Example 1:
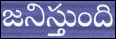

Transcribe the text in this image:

జనిస్తుంది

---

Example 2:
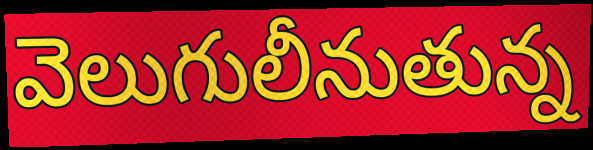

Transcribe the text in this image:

వెలుగులీనుతున్న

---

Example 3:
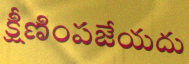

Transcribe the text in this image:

క్షీణింపజేయదు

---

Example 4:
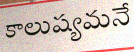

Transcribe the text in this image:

కాలుష్యమనే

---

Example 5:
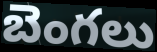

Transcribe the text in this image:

బెంగలు